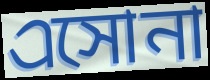
এসোনা